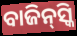
ବାଜିନ୍‌ସ୍କି